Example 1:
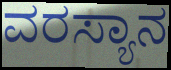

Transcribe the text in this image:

ವರಸ್ಯಾನ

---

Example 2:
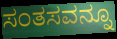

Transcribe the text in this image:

ಸಂತಸವನ್ನೂ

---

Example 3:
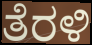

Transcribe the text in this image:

ತೆರಳಿ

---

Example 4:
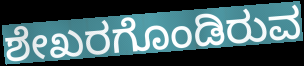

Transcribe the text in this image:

ಶೇಖರಗೊಂಡಿರುವ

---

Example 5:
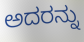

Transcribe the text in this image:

ಅದರನ್ನು